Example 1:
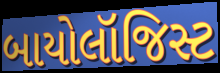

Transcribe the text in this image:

બાયોલૉજિસ્ટ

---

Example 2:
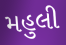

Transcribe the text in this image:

મહુલી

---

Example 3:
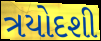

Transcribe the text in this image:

ત્રયોદશી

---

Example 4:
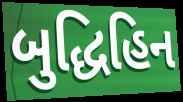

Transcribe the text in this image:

બુદ્ધિહિન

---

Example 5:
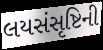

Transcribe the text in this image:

લયસંસૃષ્ટિની